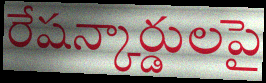
రేషన్కార్డులపై